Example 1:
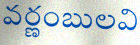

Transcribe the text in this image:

వర్ణంబులవి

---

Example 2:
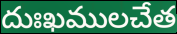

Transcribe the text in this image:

దుఃఖములచేత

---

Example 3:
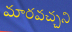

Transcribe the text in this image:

మారవచ్చని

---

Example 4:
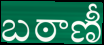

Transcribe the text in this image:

బఠాణీ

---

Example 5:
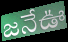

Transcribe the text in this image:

జనేఊ